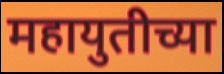
महायुतीच्या